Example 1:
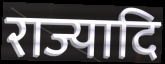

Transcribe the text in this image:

राज्यादि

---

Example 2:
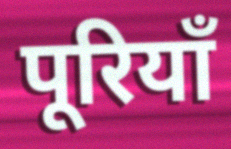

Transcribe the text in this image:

पूरियाँ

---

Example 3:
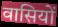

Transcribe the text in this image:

वासियों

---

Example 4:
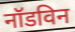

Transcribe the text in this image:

नॉडविन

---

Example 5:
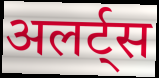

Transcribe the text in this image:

अलर्ट्स